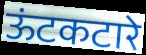
ऊंटकटारे